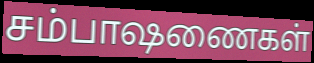
சம்பாஷணைகள்